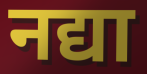
नद्या